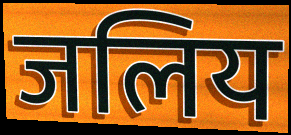
जलिय